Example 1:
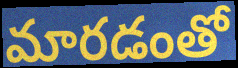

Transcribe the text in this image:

మారడంతో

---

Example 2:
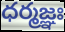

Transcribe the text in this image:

ధర్మజ్ఞః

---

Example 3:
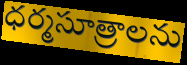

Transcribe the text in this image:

ధర్మసూత్రాలను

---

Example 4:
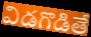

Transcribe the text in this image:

విడగొడితే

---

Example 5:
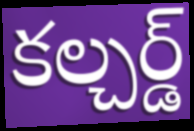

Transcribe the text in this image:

కల్చర్డ్